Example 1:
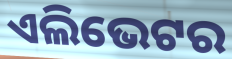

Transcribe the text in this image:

ଏଲିଭେଟର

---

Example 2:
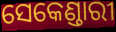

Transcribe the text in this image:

ସେକେଣ୍ଡାରୀ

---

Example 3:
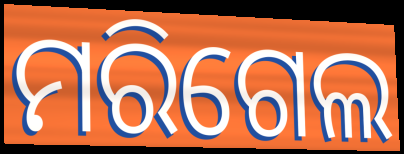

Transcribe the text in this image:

ମରିଗେଲ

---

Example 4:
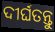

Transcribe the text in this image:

ଦୀର୍ଘତନ୍ତୁ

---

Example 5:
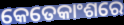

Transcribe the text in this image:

କେତେକାଂଶରେ